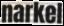
narkel